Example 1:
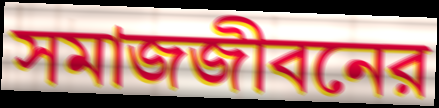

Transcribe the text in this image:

সমাজজীবনের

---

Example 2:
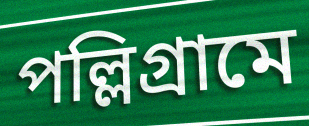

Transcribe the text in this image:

পল্লিগ্রামে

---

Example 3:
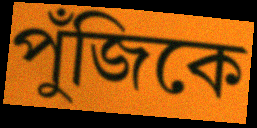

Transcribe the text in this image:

পুঁজিকে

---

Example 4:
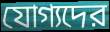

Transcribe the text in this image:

যোগ্যদের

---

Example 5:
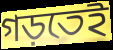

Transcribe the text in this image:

গড়তেই